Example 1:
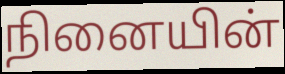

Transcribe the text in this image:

நினையின்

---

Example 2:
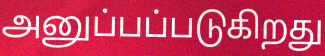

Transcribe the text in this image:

அனுப்பப்படுகிறது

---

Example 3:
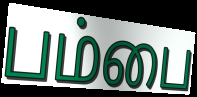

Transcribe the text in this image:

பம்பை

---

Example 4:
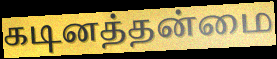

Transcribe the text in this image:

கடினத்தன்மை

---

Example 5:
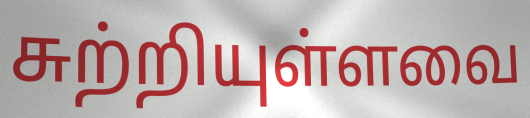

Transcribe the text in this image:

சுற்றியுள்ளவை